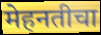
मेहनतीचा